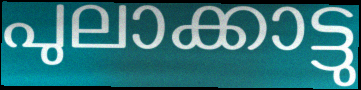
പുലാക്കാട്ടു